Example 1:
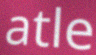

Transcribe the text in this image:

atle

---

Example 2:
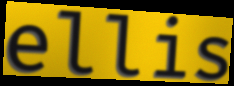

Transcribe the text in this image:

ellis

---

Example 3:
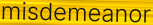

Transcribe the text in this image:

misdemeanor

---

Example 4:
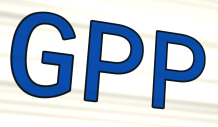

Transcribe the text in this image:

GPP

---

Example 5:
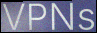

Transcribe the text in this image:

VPNs